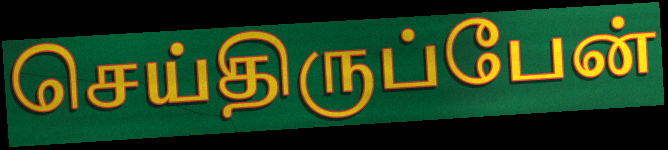
செய்திருப்பேன்